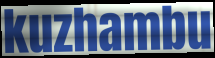
kuzhambu